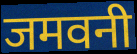
जमवनी